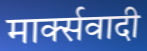
मार्क्‍सवादी